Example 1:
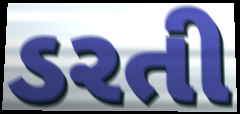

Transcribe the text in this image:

ડરતી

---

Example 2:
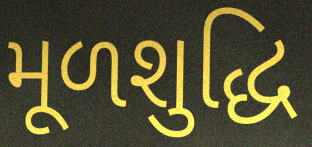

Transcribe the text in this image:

મૂળશુદ્ધિ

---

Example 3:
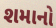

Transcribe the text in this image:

શમાનો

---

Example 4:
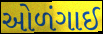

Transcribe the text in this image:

ઓળંગાઈ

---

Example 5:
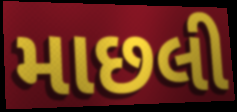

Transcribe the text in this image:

માછલી